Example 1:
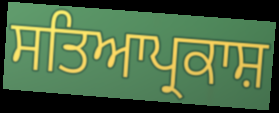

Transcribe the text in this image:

ਸਤਿਆਪ੍ਰਕਾਸ਼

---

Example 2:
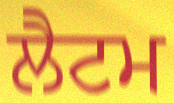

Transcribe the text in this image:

ਲੈਟਮ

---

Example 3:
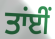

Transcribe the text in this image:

ਤਾਂਈਂ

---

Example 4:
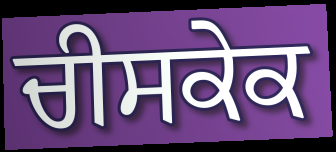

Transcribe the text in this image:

ਚੀਸਕੇਕ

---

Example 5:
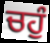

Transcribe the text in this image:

ਚਹੁੰ